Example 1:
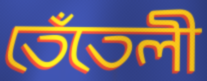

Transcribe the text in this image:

তেঁতেলী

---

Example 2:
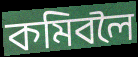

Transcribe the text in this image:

কমিবলৈ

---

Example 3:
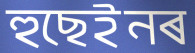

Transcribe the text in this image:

হুছেইনৰ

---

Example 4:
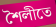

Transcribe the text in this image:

শৈলীতে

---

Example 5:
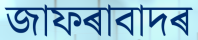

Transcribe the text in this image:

জাফৰাবাদৰ